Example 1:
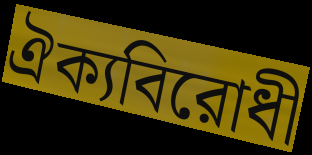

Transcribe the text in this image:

ঐক্যবিরোধী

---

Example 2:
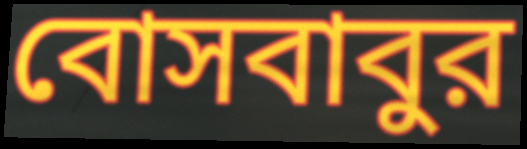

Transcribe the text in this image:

বোসবাবুর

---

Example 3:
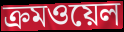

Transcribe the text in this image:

ক্রমওয়েল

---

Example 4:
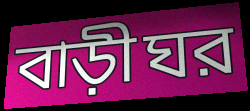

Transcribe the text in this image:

বাড়ীঘর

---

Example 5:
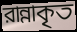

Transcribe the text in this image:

রান্নাকৃত